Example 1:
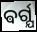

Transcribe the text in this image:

ଵର୍ଗ୍ଯ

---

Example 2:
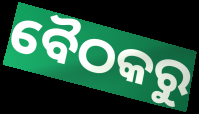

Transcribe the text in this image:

ବୈଠକରୁ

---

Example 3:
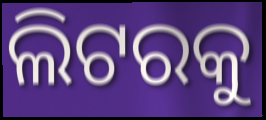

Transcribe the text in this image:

ଲିଟରକୁ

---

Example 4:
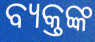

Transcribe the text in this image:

ବ୍ୟକ୍ତଙ୍କ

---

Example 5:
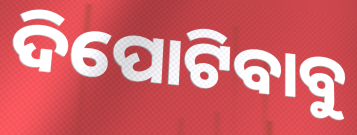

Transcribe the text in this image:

ଦିପୋଟିବାବୁ